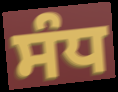
ਸੰਧ